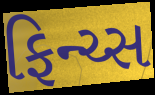
ફિન્ચ્સ